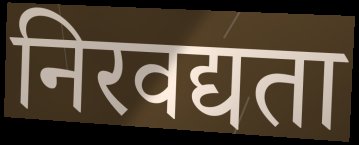
निरवद्यता